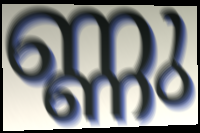
ണ്ണു